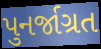
પુનર્જાગ્રત